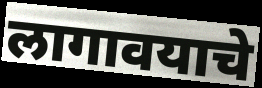
लागावयाचे